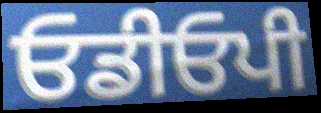
ਓਡੀਓਪੀ